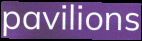
pavilions